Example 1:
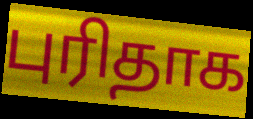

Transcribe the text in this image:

புரிதாக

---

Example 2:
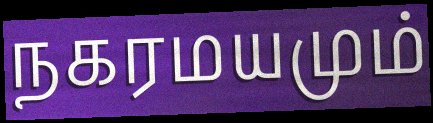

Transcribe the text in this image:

நகரமயமும்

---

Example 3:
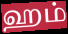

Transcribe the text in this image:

ஹம்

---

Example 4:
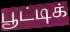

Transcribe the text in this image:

பூட்டிக்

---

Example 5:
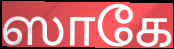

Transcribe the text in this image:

ஸாகே